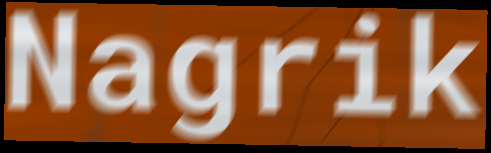
Nagrik